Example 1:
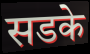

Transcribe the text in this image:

सडके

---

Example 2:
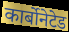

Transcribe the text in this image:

कार्बोनेटेड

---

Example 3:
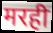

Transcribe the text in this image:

मरही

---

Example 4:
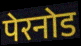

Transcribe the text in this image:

पेरनोड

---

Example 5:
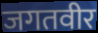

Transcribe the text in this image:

जगतवीर